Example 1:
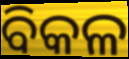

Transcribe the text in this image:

ବିକଳ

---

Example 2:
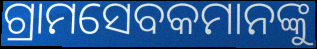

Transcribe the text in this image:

ଗ୍ରାମସେବକମାନଙ୍କୁ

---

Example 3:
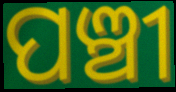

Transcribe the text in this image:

ପଞ୍ଚୀ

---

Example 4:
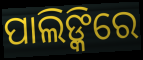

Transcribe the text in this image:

ପାଲିଙ୍କିରେ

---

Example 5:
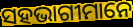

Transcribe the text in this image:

ସହଭାଗୀମାନେ